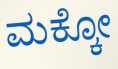
ಮಕ್ಕೋ